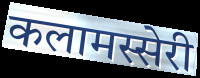
कलामस्सेरी